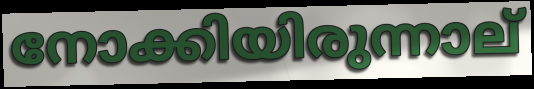
നോക്കിയിരുന്നാല്